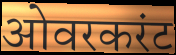
ओवरकरंट